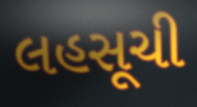
લહસૂચી